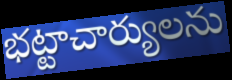
భట్టాచార్యులను